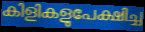
കിളികളുപേക്ഷിച്ച